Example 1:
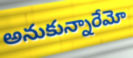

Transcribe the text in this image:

అనుకున్నారేమో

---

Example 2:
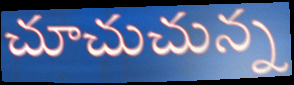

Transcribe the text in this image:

చూచుచున్న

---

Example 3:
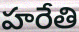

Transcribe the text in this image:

హరేతి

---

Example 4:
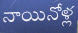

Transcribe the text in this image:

నాయినోళ్ల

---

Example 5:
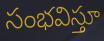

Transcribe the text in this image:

సంభవిస్తూ